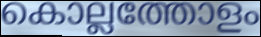
കൊല്ലത്തോളം